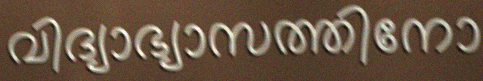
വിദ്യാഭ്യാസത്തിനോ